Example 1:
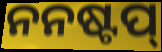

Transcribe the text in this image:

ନନଷ୍ଟପ୍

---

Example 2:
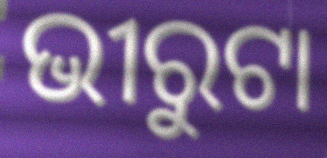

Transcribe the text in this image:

ଭୀରୁଟା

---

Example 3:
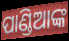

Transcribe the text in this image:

ପାଣ୍ଡିଆଙ୍କ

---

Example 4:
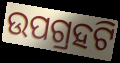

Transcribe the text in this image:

ଉପଗ୍ରହଟି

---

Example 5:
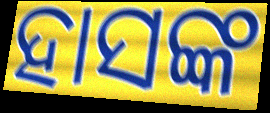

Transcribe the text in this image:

ହାସଙ୍କ